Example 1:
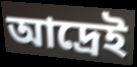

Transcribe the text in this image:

আদ্রেই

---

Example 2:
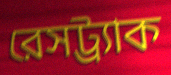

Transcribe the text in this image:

রেসট্র্যাক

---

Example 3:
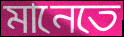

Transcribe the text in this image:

মানেতে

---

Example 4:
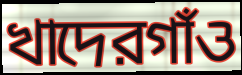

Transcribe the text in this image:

খাদেরগাঁও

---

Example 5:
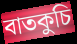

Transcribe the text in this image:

বাতকুচি